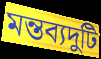
মন্তব্যদুটি